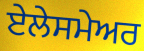
ਏਲੇਸਮੇਅਰ